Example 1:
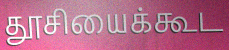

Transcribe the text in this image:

தூசியைக்கூட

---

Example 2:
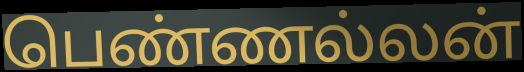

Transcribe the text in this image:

பெண்ணல்லன்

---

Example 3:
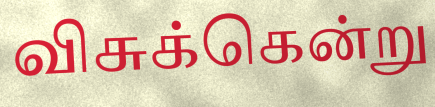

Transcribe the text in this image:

விசுக்கென்று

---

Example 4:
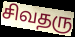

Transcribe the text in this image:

சிவதரு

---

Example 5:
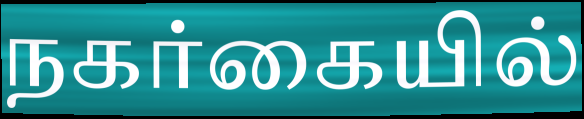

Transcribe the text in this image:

நகர்கையில்